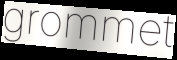
grommet